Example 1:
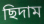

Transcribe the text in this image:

ছিদাম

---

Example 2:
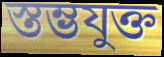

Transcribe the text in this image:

স্তম্ভযুক্ত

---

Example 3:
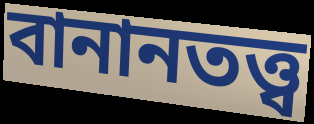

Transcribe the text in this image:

বানানতত্ত্ব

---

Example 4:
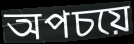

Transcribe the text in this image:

অপচয়ে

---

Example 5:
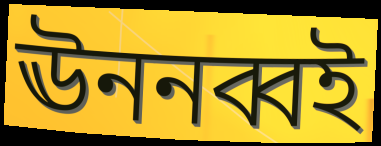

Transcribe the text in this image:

ঊননব্বই